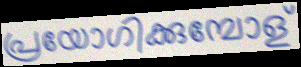
പ്രയോഗിക്കുമ്പോള്